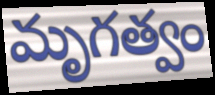
మృగత్వం